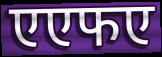
एएफए